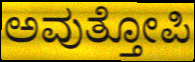
ಅವುತ್ತೋಪಿ